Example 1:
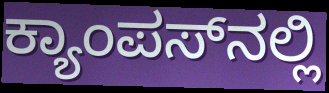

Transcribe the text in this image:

ಕ್ಯಾಂಪಸ್‌ನಲ್ಲಿ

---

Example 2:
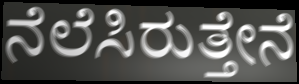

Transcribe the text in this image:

ನೆಲೆಸಿರುತ್ತೇನೆ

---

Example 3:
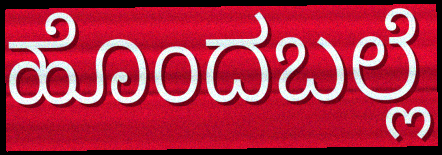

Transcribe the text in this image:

ಹೊಂದಬಲ್ಲೆ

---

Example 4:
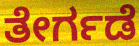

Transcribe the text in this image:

ತೇರ್ಗಡೆ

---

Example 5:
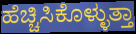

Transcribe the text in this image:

ಹೆಚ್ಚಿಸಿಕೊಳ್ಳುತ್ತಾ